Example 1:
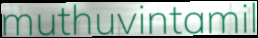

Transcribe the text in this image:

muthuvintamil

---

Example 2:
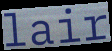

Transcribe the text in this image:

lair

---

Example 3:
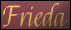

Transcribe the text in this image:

Frieda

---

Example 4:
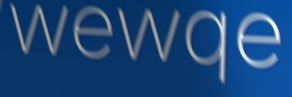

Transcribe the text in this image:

wewqe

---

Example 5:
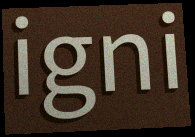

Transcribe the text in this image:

igni